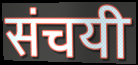
संचयी